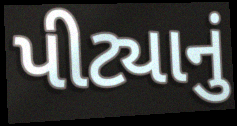
પીટ્યાનું